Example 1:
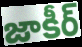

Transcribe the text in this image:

జాకీర్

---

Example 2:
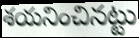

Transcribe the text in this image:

శయనించినట్టు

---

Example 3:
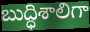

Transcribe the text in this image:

బుద్ధిశాలిగా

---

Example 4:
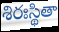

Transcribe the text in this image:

శిరఃస్థితా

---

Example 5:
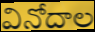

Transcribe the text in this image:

వినోదాల